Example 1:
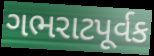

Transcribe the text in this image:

ગભરાટપૂર્વક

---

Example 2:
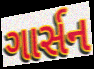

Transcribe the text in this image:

ગાર્સન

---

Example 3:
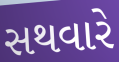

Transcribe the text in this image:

સથવારે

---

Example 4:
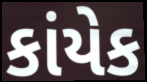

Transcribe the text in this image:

કાંયેક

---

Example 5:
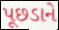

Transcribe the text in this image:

પૂછડાને